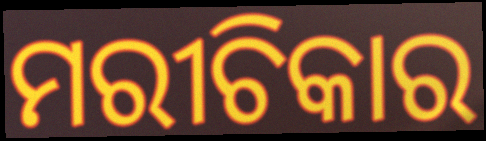
ମରୀଚିକାର